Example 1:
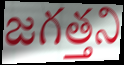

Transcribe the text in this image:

జగత్తని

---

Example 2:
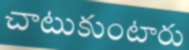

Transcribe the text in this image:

చాటుకుంటారు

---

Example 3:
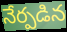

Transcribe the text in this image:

నేర్పడిన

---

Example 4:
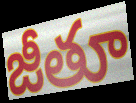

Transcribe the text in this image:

జీతూ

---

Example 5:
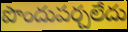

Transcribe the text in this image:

పొందుపర్చలేదు